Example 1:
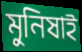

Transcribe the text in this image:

মুনিষাই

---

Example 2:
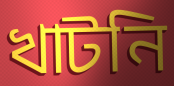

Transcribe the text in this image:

খাটনি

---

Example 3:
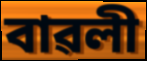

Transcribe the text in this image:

বাৱলী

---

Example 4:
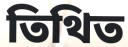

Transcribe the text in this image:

তিথিত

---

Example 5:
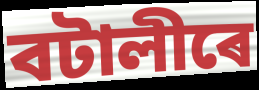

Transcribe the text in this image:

বটালীৰে